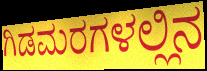
ಗಿಡಮರಗಳಲ್ಲಿನ